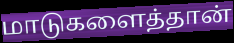
மாடுகளைத்தான்